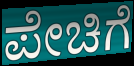
ಪೇಚಿಗೆ